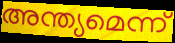
അന്ത്യമെന്ന്